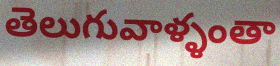
తెలుగువాళ్ళంతా